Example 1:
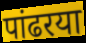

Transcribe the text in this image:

पांढरया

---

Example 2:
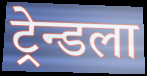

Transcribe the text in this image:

ट्रेन्डला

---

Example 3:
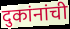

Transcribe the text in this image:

दुकांनांची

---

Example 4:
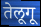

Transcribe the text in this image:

तेलूगू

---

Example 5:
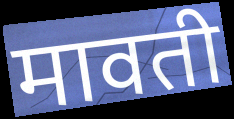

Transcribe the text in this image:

मावती